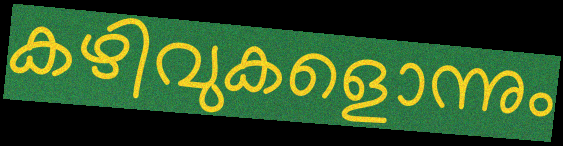
കഴിവുകളൊന്നും